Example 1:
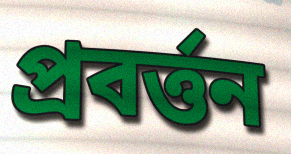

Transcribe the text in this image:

প্ৰবৰ্ত্তন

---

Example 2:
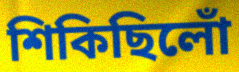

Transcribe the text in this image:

শিকিছিলোঁ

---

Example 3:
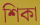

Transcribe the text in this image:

শিকা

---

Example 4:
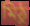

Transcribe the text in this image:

মিঠু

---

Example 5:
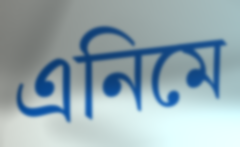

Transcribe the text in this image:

এনিমে